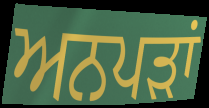
ਅਨਪੜਾਂ